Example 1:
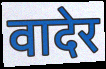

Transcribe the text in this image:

वादेर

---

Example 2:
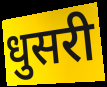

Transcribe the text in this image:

धुसरी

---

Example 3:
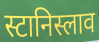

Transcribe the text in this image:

स्टानिस्लाव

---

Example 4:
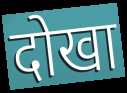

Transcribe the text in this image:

दोखा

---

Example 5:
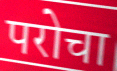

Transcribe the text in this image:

परोचा